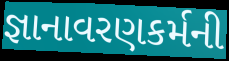
જ્ઞાનાવરણકર્મની